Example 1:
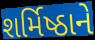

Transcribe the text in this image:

શર્મિષ્ઠાને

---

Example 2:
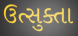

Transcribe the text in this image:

ઉત્સુક્તા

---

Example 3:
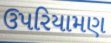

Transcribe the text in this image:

ઉપરિયામણ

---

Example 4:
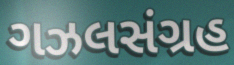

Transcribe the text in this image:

ગઝલસંગ્રહ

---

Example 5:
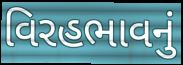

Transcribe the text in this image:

વિરહભાવનું